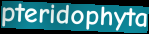
pteridophyta